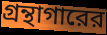
গ্রন্থাগারের